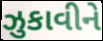
ઝુકાવીને